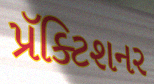
પ્રૅક્ટિશનર